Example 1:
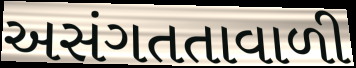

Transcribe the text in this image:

અસંગતતાવાળી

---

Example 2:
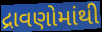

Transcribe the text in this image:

દ્રાવણોમાંથી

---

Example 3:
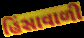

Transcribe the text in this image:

હિંસાવાળી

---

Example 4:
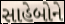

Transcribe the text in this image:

સાહેબોને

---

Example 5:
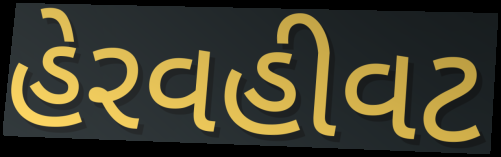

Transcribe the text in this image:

હેરવહીવટ